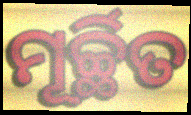
ମୂର୍ଚ୍ଛିତ